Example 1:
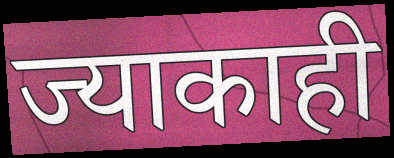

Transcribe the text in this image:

ज्याकाही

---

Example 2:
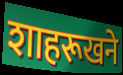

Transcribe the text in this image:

शाहरूखने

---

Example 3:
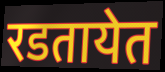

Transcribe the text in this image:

रडतायेत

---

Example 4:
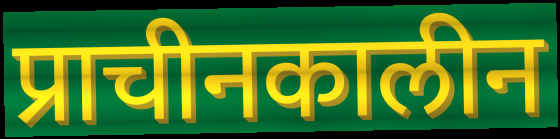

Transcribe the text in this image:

प्राचीनकालीन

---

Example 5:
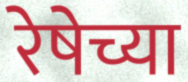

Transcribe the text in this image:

रेषेच्या